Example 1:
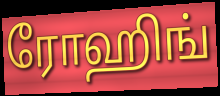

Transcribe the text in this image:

ரோஹிங்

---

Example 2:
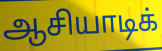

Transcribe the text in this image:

ஆசியாடிக்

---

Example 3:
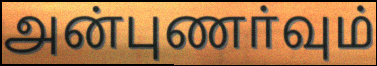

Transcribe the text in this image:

அன்புணர்வும்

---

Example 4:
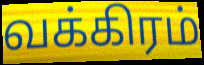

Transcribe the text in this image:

வக்கிரம்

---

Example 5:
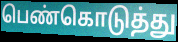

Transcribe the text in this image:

பெண்கொடுத்து